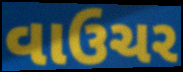
વાઉચર